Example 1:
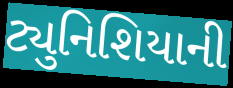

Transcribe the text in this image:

ટ્યુનિશિયાની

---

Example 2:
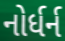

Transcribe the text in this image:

નોર્ધર્ન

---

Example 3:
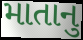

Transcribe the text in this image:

માતાનુ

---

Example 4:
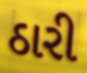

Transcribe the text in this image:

ઠારી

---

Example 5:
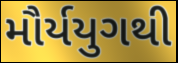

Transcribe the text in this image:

મૌર્યયુગથી